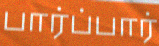
பார்ப்பார்